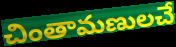
చింతామణులచే